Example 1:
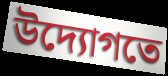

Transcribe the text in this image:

উদ্যোগতে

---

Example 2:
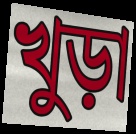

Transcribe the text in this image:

খুড়া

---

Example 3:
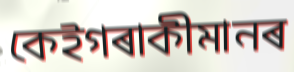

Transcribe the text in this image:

কেইগৰাকীমানৰ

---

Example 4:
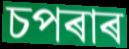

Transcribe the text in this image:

চপৰাৰ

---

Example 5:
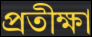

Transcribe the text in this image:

প্ৰতীক্ষা